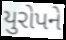
યુરોપને